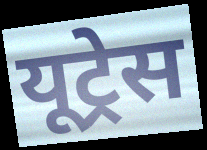
यूट्रेस